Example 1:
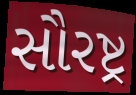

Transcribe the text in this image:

સૌરષ્ટ્ર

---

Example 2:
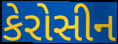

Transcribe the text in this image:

કેરોસીન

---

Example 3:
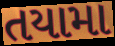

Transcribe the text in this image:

તયામા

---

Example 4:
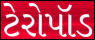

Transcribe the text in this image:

ટેરોપૉડ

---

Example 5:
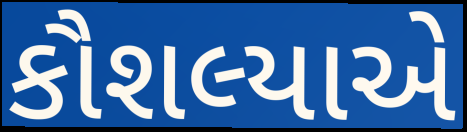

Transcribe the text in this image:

કૌશલ્યાએ